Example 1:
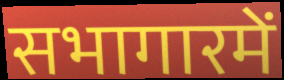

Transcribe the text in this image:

सभागारमें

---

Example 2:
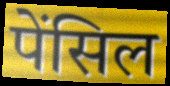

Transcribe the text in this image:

पेंसिल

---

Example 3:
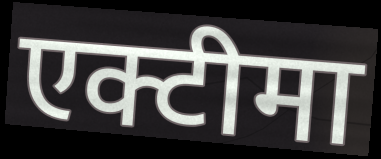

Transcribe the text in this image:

एक्टीमा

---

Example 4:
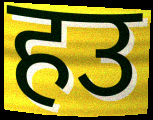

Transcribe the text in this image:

हउ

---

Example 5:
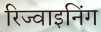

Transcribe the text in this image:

रिज्वाइनिंग